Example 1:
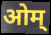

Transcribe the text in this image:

ओम्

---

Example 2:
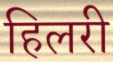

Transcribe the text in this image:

हिलरी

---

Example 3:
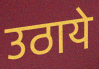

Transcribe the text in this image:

उठाये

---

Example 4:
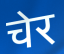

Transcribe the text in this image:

चेर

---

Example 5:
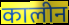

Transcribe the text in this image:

कालीन